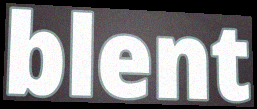
blent